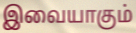
இவையாகும்